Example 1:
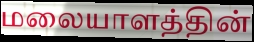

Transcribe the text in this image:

மலையாளத்தின்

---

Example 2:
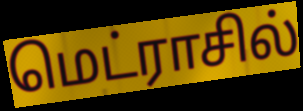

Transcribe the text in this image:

மெட்ராசில்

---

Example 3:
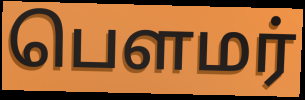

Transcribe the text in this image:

பௌமர்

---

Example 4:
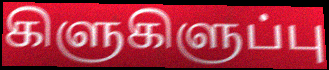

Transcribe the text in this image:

கிளுகிளுப்பு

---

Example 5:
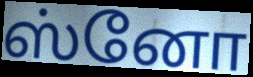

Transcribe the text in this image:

ஸ்னோ